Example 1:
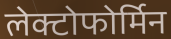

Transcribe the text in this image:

लेक्टोफोर्मिन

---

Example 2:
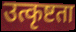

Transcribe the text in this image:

उत्कृष्टता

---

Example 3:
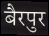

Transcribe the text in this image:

बैरपुर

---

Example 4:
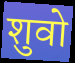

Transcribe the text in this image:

शुवो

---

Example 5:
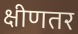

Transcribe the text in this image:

क्षीणतर